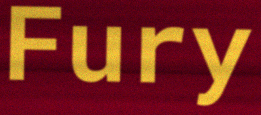
Fury